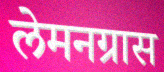
लेमनग्रास